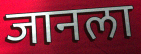
जानला